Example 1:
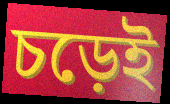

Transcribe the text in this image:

চড়েই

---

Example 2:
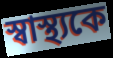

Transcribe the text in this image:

স্বাস্থ্যকে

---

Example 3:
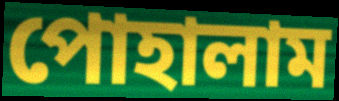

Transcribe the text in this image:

পোহালাম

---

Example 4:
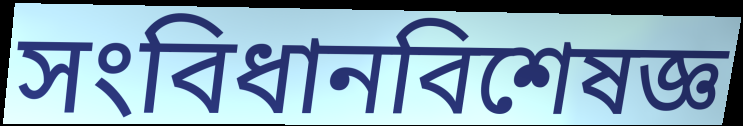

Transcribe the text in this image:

সংবিধানবিশেষজ্ঞ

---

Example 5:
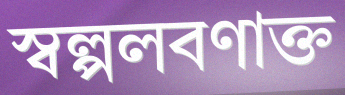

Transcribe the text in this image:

স্বল্পলবণাক্ত